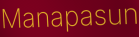
Manapasun